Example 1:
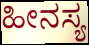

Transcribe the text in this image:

ಹೀನಸ್ಯ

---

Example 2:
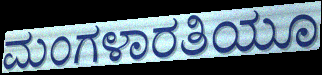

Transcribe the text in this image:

ಮಂಗಳಾರತಿಯೂ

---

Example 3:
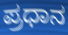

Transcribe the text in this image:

ಪ್ರಧಾನ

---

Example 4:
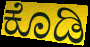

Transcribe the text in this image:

ಕೊಡಿ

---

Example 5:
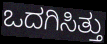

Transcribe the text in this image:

ಒದಗಿಸಿತ್ತು